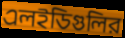
এলইডিগুলির